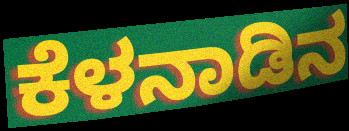
ಕೆಳನಾಡಿನ